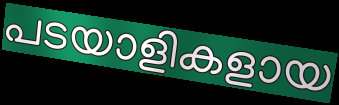
പടയാളികളായ